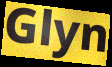
Glyn